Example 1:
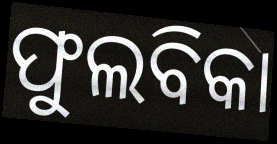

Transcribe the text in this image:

ଫୁଲବିକା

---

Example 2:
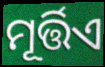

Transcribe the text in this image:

ମୂର୍ତ୍ତିଏ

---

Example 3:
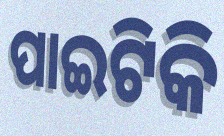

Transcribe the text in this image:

ପାଇଟିକି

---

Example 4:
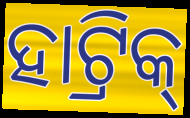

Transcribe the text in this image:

ହାଟ୍ରିକ୍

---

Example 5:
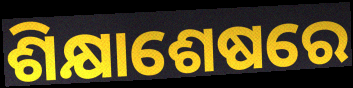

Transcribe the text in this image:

ଶିକ୍ଷାଶେଷରେ